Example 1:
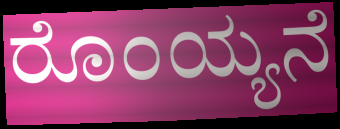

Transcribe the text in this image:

ರೊಂಯ್ಯನೆ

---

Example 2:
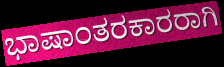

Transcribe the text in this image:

ಭಾಷಾಂತರಕಾರರಾಗಿ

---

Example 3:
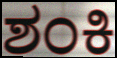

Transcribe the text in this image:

ಶಂಕಿ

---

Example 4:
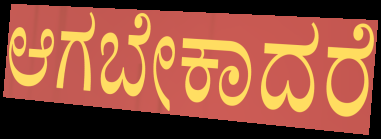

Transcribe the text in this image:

ಆಗಬೇಕಾದರೆ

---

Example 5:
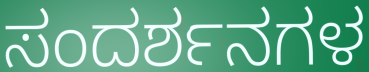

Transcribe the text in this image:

ಸಂದರ್ಶನಗಳ